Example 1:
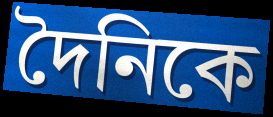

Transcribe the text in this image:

দৈনিকে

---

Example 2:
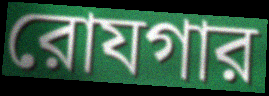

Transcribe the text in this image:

রোযগার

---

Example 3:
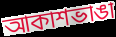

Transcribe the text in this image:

আকাশভাঙা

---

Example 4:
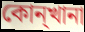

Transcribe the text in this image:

কোন্খানা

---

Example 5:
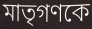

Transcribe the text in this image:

মাতৃগণকে